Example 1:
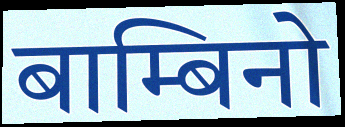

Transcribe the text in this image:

बाम्बिनो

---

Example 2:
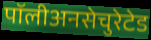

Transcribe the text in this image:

पॉलीअनसेचुरेटेड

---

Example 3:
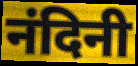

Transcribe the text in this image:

नंदिनी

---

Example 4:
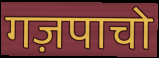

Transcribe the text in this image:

गज़पाचो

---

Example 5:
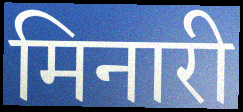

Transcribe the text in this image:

मिनारी